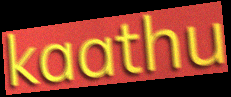
kaathu